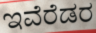
ಇವೆರೆಡರ